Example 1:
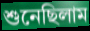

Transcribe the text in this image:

শুনেছিলাম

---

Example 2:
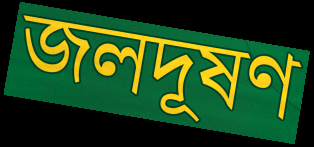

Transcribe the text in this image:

জলদূষণ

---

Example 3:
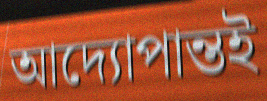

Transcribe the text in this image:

আদ্যোপান্তই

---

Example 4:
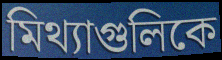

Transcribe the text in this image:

মিথ্যাগুলিকে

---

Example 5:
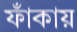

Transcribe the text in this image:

ফাঁকায়